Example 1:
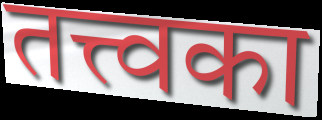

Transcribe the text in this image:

तत्त्वका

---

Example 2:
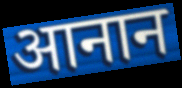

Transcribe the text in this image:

आनान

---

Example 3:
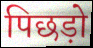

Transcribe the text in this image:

पिछड़ो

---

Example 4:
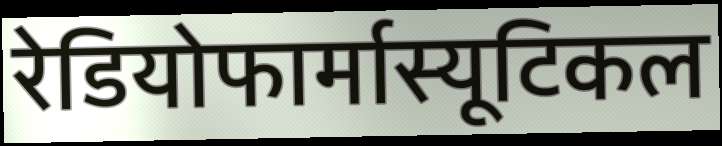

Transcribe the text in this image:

रेडियोफार्मास्यूटिकल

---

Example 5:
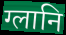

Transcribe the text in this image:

ग्लानि